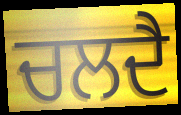
ਚਲਦੈ